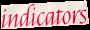
indicators